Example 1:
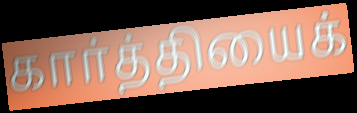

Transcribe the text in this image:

கார்த்தியைக்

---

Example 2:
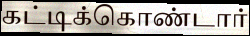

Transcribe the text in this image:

கட்டிக்கொண்டார்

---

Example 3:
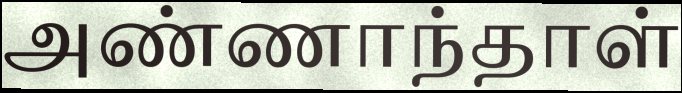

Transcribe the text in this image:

அண்ணாந்தாள்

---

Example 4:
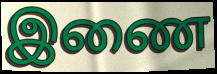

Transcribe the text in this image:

இணை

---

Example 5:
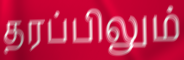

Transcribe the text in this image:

தரப்பிலும்